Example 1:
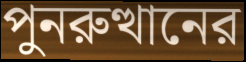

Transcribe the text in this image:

পুনরুত্থানের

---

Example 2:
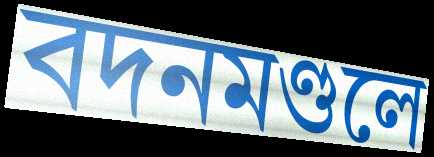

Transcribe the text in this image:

বদনমণ্ডলে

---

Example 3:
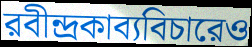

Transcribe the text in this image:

রবীন্দ্রকাব্যবিচারেও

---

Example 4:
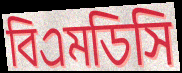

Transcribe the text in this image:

বিএমডিসি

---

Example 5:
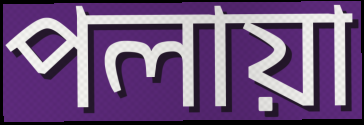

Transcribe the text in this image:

পলায়া